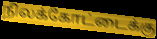
நிலக்கோட்டைக்கு